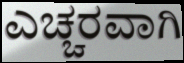
ಎಚ್ಚರವಾಗಿ